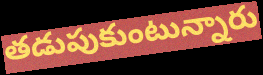
తడుపుకుంటున్నారు